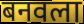
बनवला